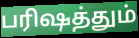
பரிஷத்தும்